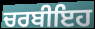
ਚਰਬੀਇਹ